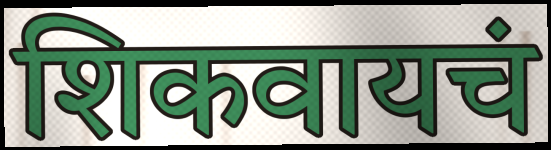
शिकवायचं